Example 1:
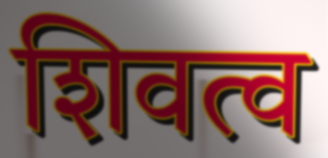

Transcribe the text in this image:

शिवत्व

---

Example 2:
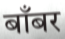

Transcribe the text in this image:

बाँबर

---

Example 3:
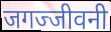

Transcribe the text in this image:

जगज्जीवनी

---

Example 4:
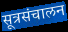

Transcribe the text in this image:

सूत्रसंचालन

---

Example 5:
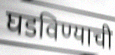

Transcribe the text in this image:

घडविण्याची